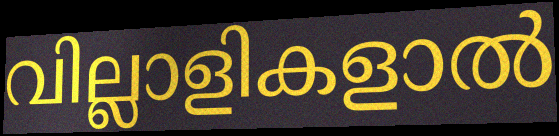
വില്ലാളികളാൽ